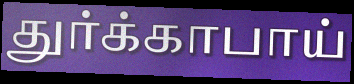
துர்க்காபாய்